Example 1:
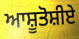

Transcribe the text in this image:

ਆਸ਼ੂਤੋਸ਼ੀਏ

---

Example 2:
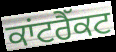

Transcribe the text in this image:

ਕਾਂਟਰੈੱਕਟ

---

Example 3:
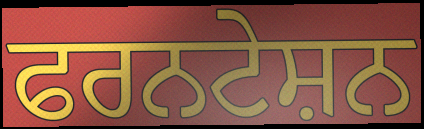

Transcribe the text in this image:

ਫਰਨਟੇਸ਼ਨ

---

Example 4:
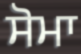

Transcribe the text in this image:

ਸੋਮਾ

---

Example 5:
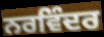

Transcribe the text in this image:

ਨਰਵਿੰਦਰ